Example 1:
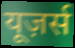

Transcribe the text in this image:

यूज़र्स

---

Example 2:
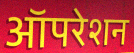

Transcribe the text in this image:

ऑपरेशन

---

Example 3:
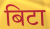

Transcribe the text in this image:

बिटा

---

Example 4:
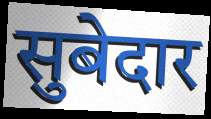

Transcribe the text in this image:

सुबेदार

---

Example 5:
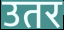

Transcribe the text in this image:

उतर